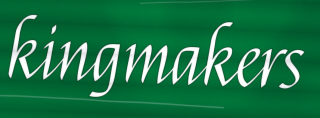
kingmakers